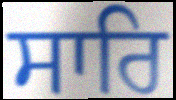
ਸਾਰਿ